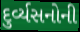
દુર્વ્યસનોની